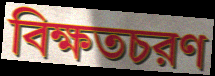
বিক্ষতচরণ